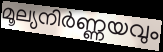
മൂല്യനിർണ്ണയവും